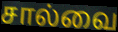
சால்வை